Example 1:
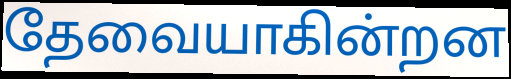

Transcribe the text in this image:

தேவையாகின்றன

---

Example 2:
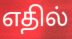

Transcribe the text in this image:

எதில்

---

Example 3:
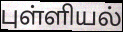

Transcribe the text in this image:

புள்ளியல்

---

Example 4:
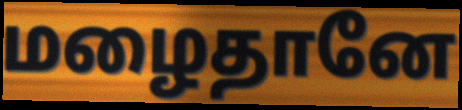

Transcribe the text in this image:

மழைதானே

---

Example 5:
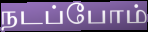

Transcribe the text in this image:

நடப்போம்